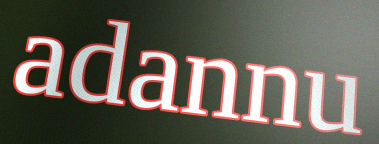
adannu